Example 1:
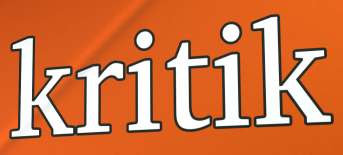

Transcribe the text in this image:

kritik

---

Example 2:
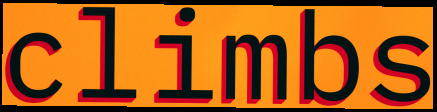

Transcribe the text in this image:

climbs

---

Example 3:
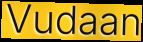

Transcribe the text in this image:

Vudaan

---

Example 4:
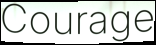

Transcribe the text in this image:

Courage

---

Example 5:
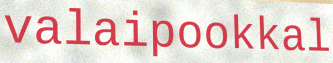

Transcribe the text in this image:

valaipookkal